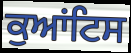
ਕੁਆਂਟਿਸ